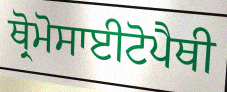
ਥ੍ਰੋਮੋਸਾਈਟੋਪੈਥੀ